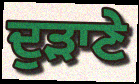
ਦੁੜਾਣੇ